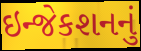
ઇન્જેકશનનું